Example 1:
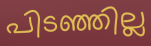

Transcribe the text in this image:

പിടഞ്ഞില്ല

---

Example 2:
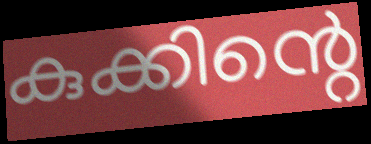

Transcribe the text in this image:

കുക്കിന്റെ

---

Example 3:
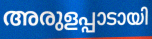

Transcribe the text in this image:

അരുളപ്പാടായി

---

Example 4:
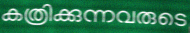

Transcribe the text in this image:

കത്രിക്കുന്നവരുടെ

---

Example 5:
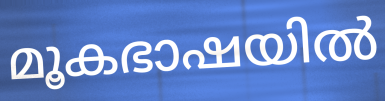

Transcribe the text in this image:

മൂകഭാഷയിൽ